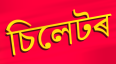
চিলেটৰ